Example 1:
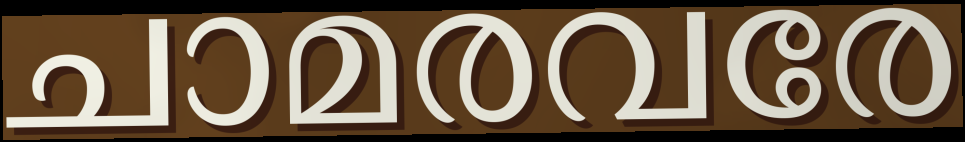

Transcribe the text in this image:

ചാമരവരേ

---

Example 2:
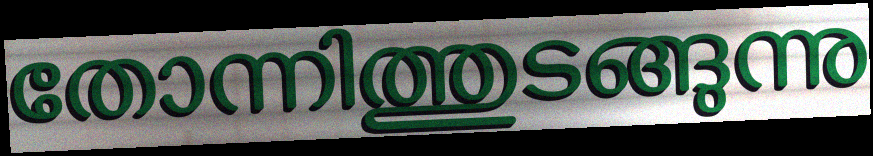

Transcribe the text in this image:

തോന്നിത്തുടങ്ങുന്നു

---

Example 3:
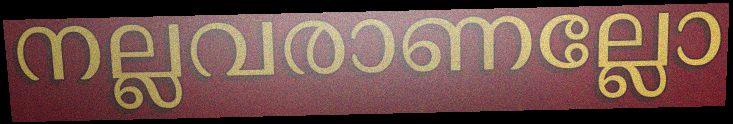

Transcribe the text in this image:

നല്ലവരാണല്ലോ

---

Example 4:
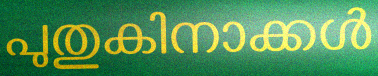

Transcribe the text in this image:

പുതുകിനാക്കൾ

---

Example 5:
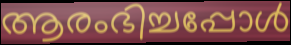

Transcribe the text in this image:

ആരംഭിച്ചപ്പോൾ